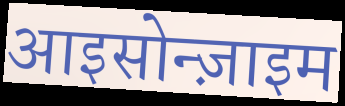
आइसोन्ज़ाइम